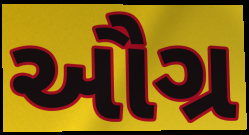
ઔગ્ર